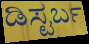
ಡಿಸ್ಟರ್ಬ